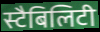
स्टैबिलिटी